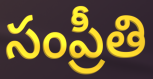
సంప్రీతి